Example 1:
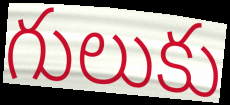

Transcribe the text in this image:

గులుకు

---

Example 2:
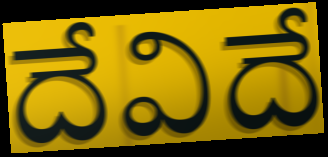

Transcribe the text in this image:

దేవిదే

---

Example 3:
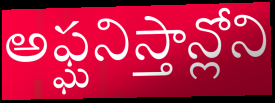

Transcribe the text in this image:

అఫ్ఘనిస్తాన్లోని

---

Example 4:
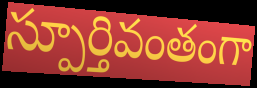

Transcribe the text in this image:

స్పూర్తివంతంగా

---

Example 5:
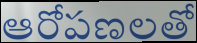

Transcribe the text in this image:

ఆరోపణలతో